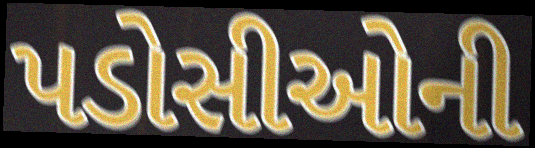
પડોસીઓની